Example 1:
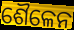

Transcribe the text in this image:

ଶୈଳେନ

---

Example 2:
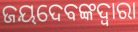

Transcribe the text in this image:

ଜୟଦେବଙ୍କଦ୍ୱାରା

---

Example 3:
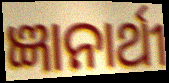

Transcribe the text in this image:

ଜ୍ଞାନାର୍ଥୀ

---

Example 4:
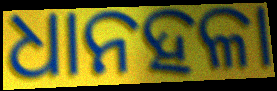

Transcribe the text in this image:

ଧାନହଳା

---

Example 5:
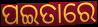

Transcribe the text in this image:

ପଇତାରେ